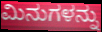
ಮಿನುಗಳನ್ನು